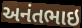
અનંતભાઇ